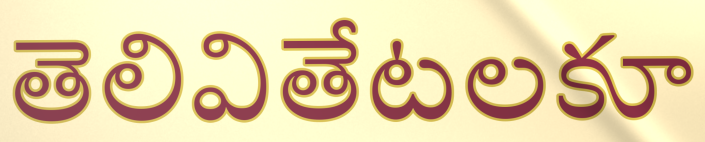
తెలివితేటలకూ